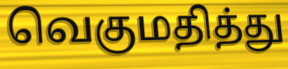
வெகுமதித்து